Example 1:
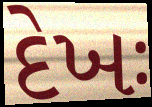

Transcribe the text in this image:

દેખઃ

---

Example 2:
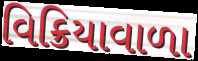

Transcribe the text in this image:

વિક્રિયાવાળા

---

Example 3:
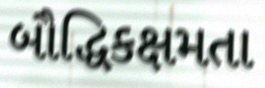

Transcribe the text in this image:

બૌદ્ધિકક્ષમતા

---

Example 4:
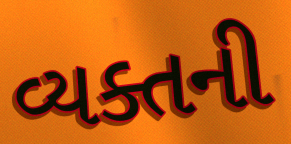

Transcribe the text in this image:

વ્યક્તની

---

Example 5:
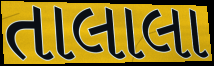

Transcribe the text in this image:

તાલાલા